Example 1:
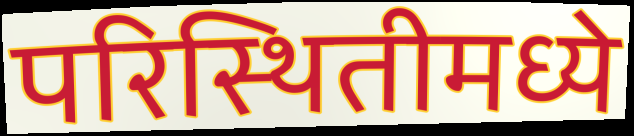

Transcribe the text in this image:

परिस्थितीमध्ये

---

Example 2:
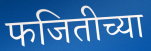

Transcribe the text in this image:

फजितीच्या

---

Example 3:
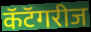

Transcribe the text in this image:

कॅटॅगरीज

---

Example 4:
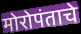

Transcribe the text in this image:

मोरोपंताचे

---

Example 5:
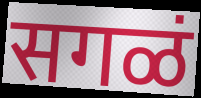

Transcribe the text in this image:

सगळं